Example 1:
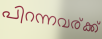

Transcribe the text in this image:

പിറന്നവര്ക്ക്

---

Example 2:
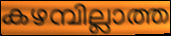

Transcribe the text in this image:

കഴമ്പില്ലാത്ത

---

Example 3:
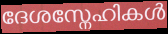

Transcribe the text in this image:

ദേശസ്നേഹികൾ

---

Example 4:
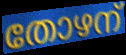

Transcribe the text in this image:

തോഴന്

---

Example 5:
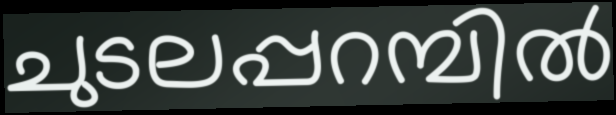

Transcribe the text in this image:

ചുടലപ്പറമ്പിൽ